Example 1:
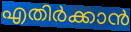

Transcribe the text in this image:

എതിർക്കാൻ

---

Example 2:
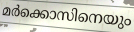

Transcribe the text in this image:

മർക്കൊസിനെയും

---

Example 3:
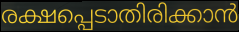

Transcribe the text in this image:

രക്ഷപ്പെടാതിരിക്കാൻ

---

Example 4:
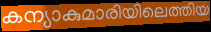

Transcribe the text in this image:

കന്യാകുമാരിയിലെത്തിയ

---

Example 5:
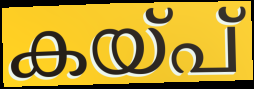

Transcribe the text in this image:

കയ്പ്